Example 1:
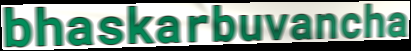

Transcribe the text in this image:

bhaskarbuvancha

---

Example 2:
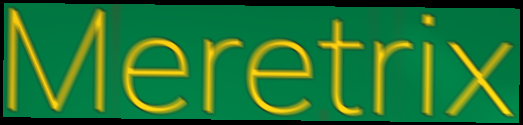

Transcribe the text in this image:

Meretrix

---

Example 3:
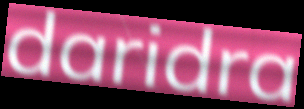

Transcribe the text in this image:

daridra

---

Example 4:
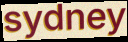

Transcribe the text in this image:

sydney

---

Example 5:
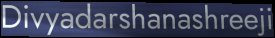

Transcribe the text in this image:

Divyadarshanashreeji